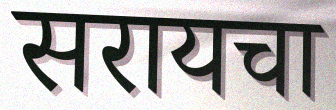
सरायचा